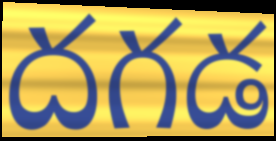
దగడ